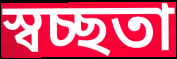
স্বচ্ছতা